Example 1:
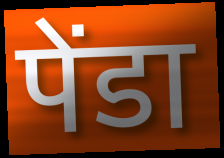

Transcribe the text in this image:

पेंडा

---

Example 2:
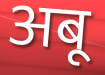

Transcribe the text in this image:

अबू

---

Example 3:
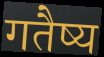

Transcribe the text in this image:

गतैष्य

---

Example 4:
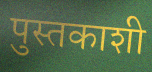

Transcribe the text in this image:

पुस्तकाशी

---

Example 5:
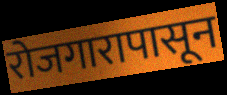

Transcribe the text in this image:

रोजगारापासून